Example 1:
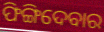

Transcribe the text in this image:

ଫିଙ୍ଗିଦେବାର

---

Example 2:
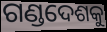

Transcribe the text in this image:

ଗଣ୍ଡଦେଶକୁ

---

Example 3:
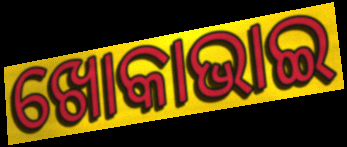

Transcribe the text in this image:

ଖୋକାଭାଇ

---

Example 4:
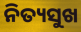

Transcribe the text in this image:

ନିତ୍ୟସୁଖ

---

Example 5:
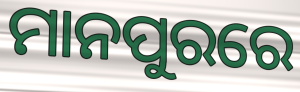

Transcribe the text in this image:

ମାନପୁରରେ